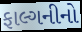
ફાલ્ગનીનો